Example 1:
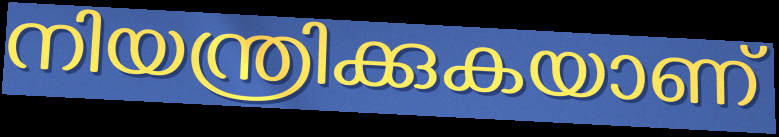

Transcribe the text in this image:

നിയന്ത്രിക്കുകയാണ്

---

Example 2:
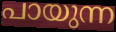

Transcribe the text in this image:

പായുന്ന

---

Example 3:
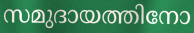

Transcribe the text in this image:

സമുദായത്തിനോ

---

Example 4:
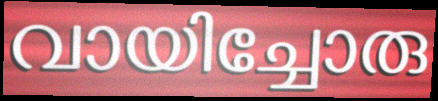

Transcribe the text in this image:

വായിച്ചോരു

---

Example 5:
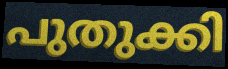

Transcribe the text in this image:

പുതുക്കി